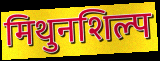
मिथुनशिल्प